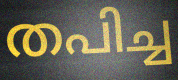
തപിച്ച